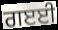
ਗੲਈ